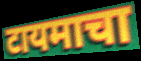
टायमाचा